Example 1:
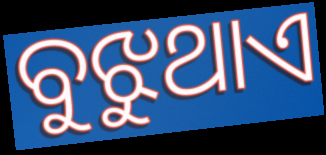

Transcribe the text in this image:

ବୁଝୁଥାଏ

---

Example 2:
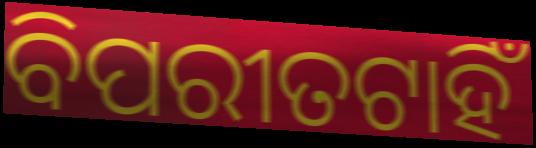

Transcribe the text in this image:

ବିପରୀତଟାହିଁ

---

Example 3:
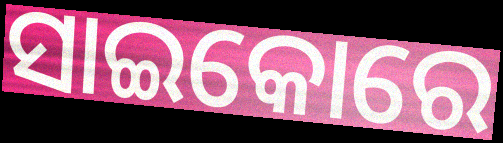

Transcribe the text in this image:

ସାଇକୋରେ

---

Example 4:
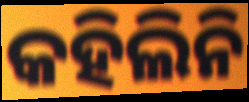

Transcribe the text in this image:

କହିଲିନି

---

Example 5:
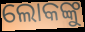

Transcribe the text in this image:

ଲୋକଙ୍କୁ